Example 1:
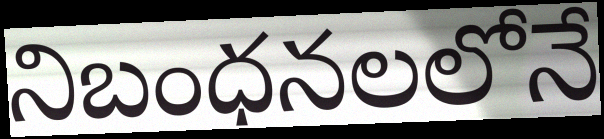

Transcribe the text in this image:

నిబంధనలలోనే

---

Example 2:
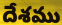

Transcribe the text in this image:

దేశము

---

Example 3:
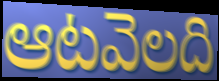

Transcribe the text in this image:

ఆటవెలది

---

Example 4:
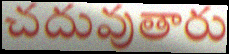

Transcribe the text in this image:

చదువుతారు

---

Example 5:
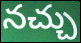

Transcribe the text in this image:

నచ్చు